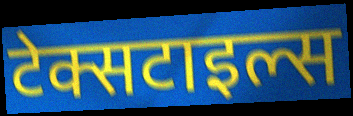
टेक्सटाइल्स